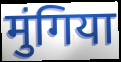
मुंगिया